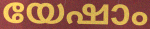
യേഷാം